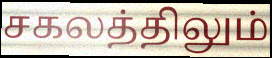
சகலத்திலும்